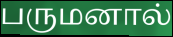
பருமனால்